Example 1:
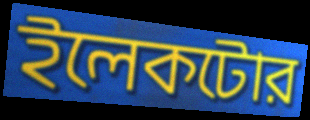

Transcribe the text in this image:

ইলেকটোর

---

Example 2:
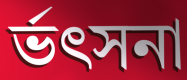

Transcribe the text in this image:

র্ভৎসনা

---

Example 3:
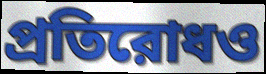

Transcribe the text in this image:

প্রতিরোধও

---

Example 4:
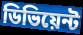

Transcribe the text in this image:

ডিভিয়েন্ট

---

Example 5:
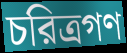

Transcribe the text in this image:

চরিত্রগণ